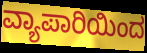
ವ್ಯಾಪಾರಿಯಿಂದ